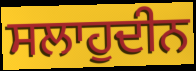
ਸਲਾਹੁਦੀਨ